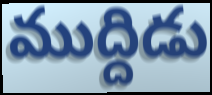
ముద్దిడు